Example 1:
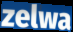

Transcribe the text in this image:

zelwa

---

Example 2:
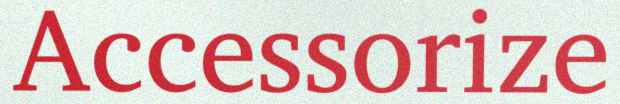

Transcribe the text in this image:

Accessorize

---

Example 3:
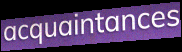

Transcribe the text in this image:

acquaintances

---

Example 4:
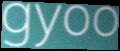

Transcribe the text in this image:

gyoo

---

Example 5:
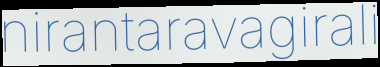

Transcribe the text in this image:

nirantaravagirali